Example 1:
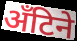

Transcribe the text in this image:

अँटिने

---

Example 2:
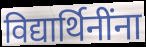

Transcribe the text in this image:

विद्यार्थिनींना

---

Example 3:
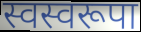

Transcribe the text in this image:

स्वस्वरूपा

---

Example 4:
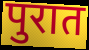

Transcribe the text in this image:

पुरात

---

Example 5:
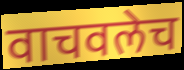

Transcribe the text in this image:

वाचवलेच